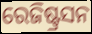
ରେଜିଷ୍ଟ୍ରସନ